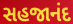
સહજાનંદ